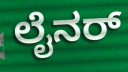
ಲೈನರ್